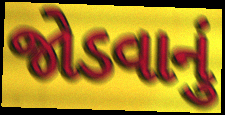
જોડવાનું